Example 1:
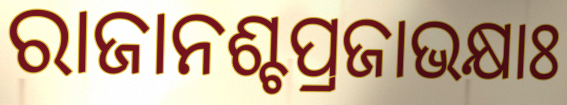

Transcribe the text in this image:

ରାଜାନଶ୍ଚପ୍ରଜାଭକ୍ଷାଃ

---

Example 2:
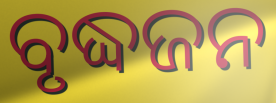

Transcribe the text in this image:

ବୃଦ୍ଧଜନ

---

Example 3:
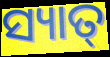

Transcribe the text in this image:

ସ୍ୟାତ୍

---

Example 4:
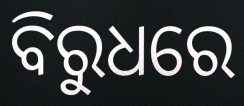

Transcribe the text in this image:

ବିରୁଧରେ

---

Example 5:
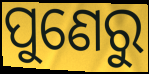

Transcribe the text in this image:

ପୁଣେରୁ